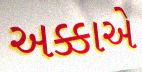
અક્કાએ